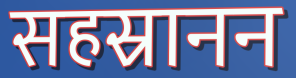
सहस्रानन